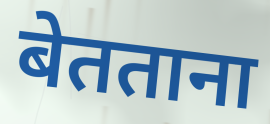
बेतताना